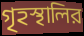
গৃহস্থালির